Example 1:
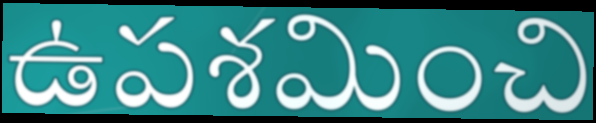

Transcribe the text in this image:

ఉపశమించి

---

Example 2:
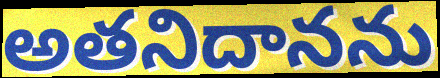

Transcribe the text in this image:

అతనిదానను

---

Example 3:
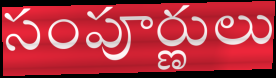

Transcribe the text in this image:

సంపూర్ణులు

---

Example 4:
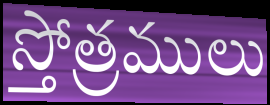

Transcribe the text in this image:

స్తోత్రములు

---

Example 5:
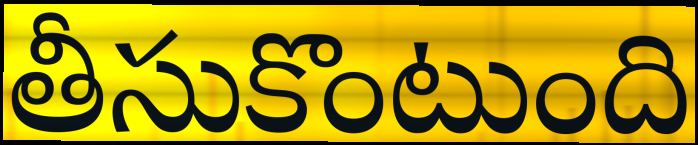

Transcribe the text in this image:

తీసుకొంటుంది